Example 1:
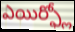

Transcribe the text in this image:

ఎయిర్ఫ్లో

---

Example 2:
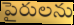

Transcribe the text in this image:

పైరులను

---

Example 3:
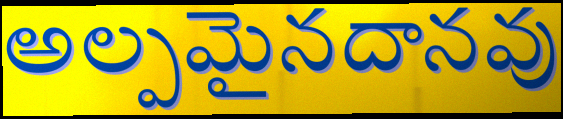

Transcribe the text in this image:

అల్పమైనదానవు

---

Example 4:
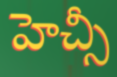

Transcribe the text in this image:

హెచ్సీ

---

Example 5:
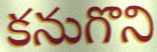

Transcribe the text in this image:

కనుగొని